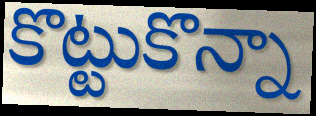
కొట్టుకొన్నా